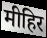
मीहिर